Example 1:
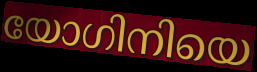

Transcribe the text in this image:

യോഗിനിയെ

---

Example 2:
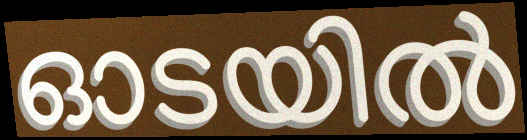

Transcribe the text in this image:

ഓടയിൽ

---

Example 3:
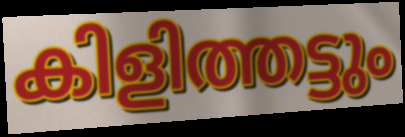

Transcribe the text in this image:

കിളിത്തട്ടും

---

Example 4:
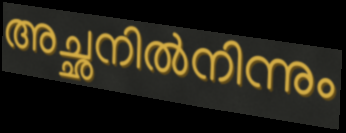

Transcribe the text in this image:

അച്ഛനിൽനിന്നും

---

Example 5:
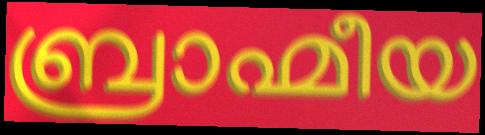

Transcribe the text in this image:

ബ്രാഹ്മീയ